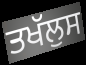
ਤਖੱਲੁਸ